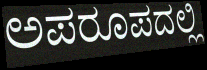
ಅಪರೂಪದಲ್ಲಿ